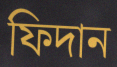
ফিদান